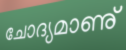
ചോദ്യമാണു്